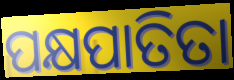
ପକ୍ଷପାତିତା